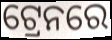
ଟ୍ରେନରେ